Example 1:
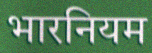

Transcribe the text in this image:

भारनियम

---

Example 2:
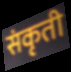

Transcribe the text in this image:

संकृती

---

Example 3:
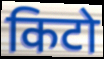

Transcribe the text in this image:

किटो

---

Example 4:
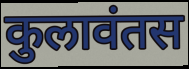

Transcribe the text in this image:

कुलावंतस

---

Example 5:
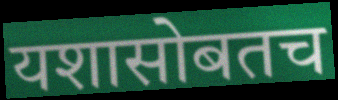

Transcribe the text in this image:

यशासोबतच